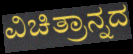
ವಿಚಿತ್ರಾನ್ನದ